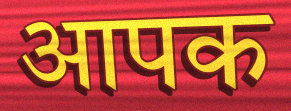
आपक